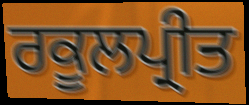
ਰਕੂਲਪ੍ਰੀਤ